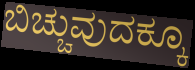
ಬಿಚ್ಚುವುದಕ್ಕೂ